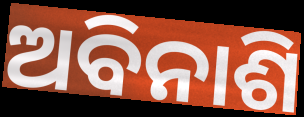
ଅବିନାଶି